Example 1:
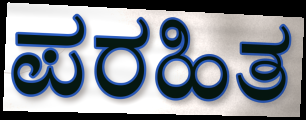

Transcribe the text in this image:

ಪರಹಿತ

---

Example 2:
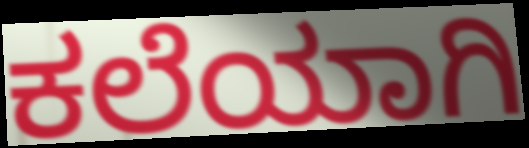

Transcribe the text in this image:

ಕಲೆಯಾಗಿ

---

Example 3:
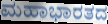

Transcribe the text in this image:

ಮಹಾಭಾರತದ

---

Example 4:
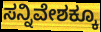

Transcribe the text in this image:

ಸನ್ನಿವೇಶಕ್ಕೂ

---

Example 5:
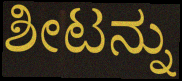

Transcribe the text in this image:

ಶೀಟನ್ನು